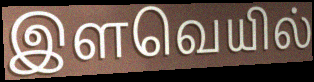
இளவெயில்